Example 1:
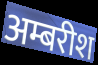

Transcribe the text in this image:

अम्बरीश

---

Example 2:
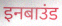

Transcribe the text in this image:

इनबाउंड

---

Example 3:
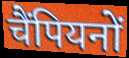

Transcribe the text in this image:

चैंपियनों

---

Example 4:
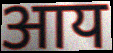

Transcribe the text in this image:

आय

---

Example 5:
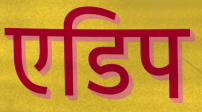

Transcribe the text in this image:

एडिप